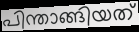
പിന്താങ്ങിയത്